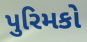
પુરિમકો